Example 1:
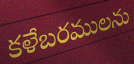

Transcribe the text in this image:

కళేబరములను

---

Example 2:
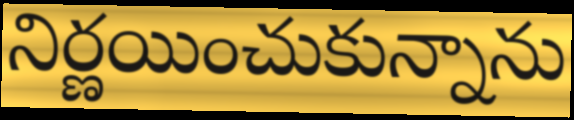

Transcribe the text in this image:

నిర్ణయించుకున్నాను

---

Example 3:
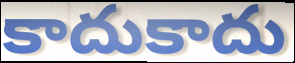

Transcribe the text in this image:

కాదుకాదు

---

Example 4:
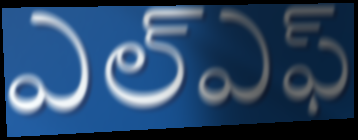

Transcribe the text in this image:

ఎల్ఎఫ్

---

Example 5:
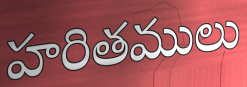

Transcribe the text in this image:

హరితములు